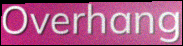
Overhang